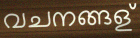
വചനങ്ങള്